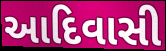
આદિવાસી